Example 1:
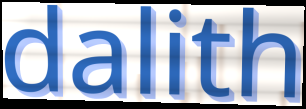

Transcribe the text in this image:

dalith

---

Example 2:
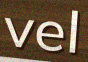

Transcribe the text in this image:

vel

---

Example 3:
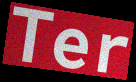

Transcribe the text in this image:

Ter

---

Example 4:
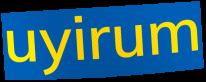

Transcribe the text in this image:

uyirum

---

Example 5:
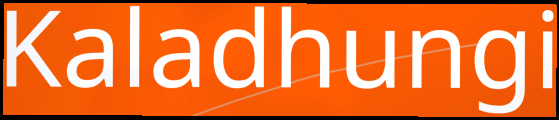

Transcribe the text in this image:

Kaladhungi